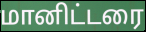
மானிட்டரை